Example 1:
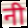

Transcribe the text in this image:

नी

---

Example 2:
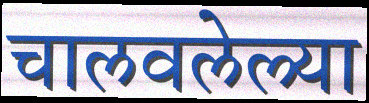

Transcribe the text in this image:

चालवलेल्या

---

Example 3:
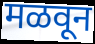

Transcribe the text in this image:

मळवून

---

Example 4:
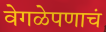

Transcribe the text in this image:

वेगळेपणाचं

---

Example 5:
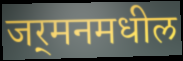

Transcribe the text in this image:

जर्मनमधील